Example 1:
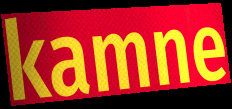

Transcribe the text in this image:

kamne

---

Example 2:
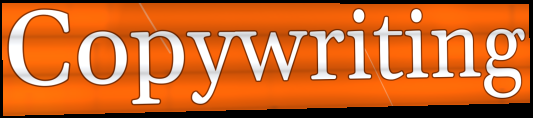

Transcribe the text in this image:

Copywriting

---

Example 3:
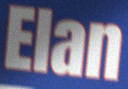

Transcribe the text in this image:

Elan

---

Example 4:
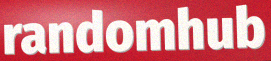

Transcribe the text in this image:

randomhub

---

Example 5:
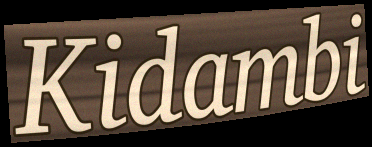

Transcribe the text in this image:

Kidambi